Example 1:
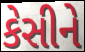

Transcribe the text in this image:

કેસીને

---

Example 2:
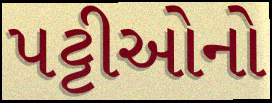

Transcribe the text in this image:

પટ્ટીઓનો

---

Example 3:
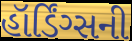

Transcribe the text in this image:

હૉર્ડિંગ્સની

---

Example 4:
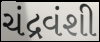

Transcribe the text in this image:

ચંદ્રવંશી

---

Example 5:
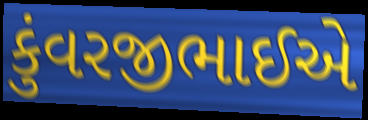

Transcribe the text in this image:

કુંવરજીભાઈએ